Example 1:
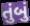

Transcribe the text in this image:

તુંબું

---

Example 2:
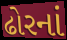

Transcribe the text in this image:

ઢોરનાં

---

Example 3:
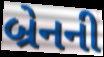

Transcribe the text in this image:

બ્રેનની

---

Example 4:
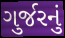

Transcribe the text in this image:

ગુર્જરનું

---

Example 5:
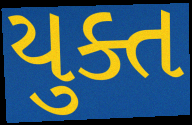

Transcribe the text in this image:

યુક્ત